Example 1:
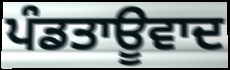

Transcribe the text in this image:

ਪੰਡਤਾਊਵਾਦ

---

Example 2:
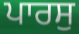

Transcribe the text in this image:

ਪਾਰਸੁ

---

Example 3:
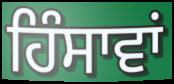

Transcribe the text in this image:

ਹਿੰਸਾਵਾਂ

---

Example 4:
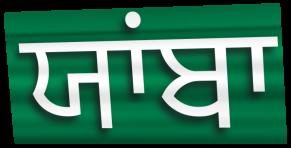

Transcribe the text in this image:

ਯਾਂਬਾ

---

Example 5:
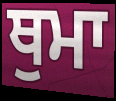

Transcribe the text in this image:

ਥੁਮਾ